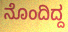
ನೊಂದಿದ್ದ